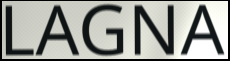
LAGNA